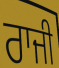
ਰਾਜੀ